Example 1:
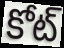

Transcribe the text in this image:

కోట్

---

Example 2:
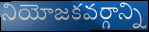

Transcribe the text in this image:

నియోజకవర్గాన్ని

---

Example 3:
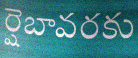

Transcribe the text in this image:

ర్షెబావరకు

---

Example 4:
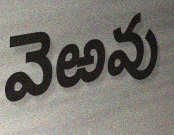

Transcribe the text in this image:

వెఱవు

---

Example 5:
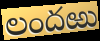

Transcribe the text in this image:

లందఱు